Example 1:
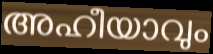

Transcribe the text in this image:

അഹീയാവും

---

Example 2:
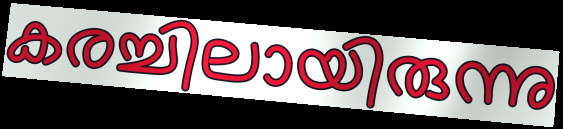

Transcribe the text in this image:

കരച്ചിലായിരുന്നു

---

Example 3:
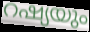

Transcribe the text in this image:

റഷ്യയും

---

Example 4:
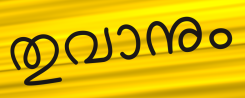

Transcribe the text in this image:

തുവാനും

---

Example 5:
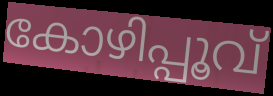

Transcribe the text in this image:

കോഴിപ്പൂവ്